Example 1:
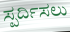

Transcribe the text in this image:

ಸ್ಪರ್ದಿಸಲು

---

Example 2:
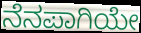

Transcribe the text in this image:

ನೆನಪಾಗಿಯೇ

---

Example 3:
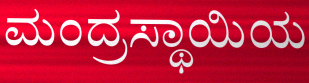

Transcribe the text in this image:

ಮಂದ್ರಸ್ಥಾಯಿಯ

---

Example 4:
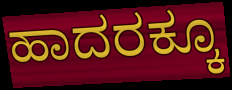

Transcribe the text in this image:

ಹಾದರಕ್ಕೂ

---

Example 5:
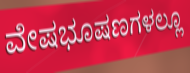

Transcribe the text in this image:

ವೇಷಭೂಷಣಗಳಲ್ಲೂ